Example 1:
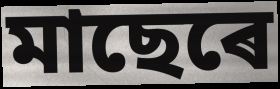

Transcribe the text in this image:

মাছেৰে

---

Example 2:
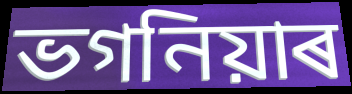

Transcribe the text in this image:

ভগনিয়াৰ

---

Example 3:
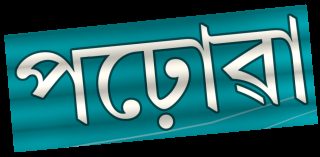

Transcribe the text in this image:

পঢ়োৱা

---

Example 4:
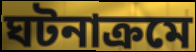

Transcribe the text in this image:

ঘটনাক্ৰমে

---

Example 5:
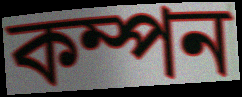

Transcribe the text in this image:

কম্পন